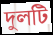
দুলটি